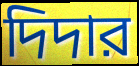
দিদার